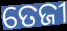
ତେଜୀ